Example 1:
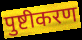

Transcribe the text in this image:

पुष्टीकरण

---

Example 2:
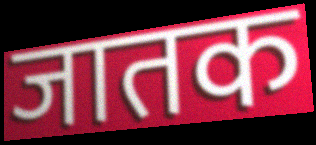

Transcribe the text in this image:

जातक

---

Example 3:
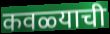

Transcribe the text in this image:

कवळ्याची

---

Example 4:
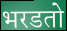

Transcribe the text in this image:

भरडतो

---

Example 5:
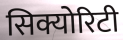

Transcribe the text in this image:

सिक्योरिटी